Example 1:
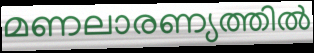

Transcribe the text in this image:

മണലാരണ്യത്തിൽ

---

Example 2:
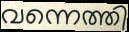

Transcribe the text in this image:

വന്നെത്തി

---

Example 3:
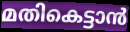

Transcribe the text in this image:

മതികെട്ടാൻ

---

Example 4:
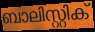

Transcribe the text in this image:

ബാലിസ്റ്റിക്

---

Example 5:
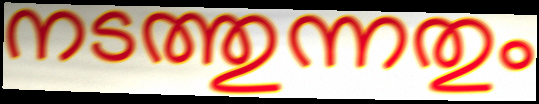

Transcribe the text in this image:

നടത്തുന്നതും